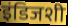
इंडिजशी